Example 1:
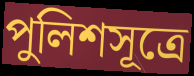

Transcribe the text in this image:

পুলিশসূত্রে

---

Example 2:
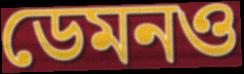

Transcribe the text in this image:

ডেমনও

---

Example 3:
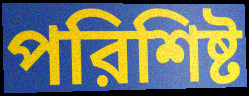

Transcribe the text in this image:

পরিশিষ্ট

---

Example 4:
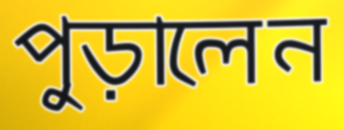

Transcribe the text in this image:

পুড়ালেন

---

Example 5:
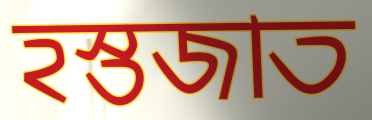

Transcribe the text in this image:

হস্তজাত